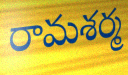
రామశర్మ